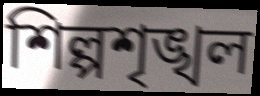
শিল্পশৃঙ্খল